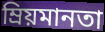
ম্রিয়মানতা